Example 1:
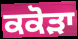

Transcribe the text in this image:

ਕਕੋੜਾ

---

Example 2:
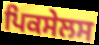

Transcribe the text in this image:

ਪਿਕਸੇਲਸ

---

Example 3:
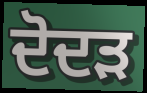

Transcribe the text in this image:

ਦੋਦੜ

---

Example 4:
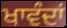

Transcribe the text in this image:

ਖਾਵੰਦਾਂ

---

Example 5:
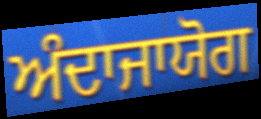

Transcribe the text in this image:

ਅੰਦਾਜਾਯੋਗ